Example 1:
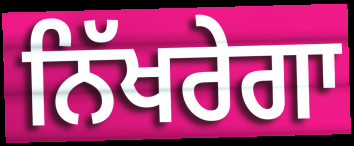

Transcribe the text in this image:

ਨਿੱਖਰੇਗਾ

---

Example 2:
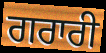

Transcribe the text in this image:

ਗਰਾਰੀ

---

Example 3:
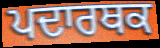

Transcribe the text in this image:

ਪਦਾਰਥਕ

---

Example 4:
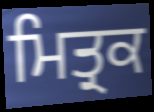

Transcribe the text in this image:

ਮਿਤ੍ਰਕ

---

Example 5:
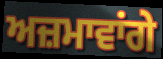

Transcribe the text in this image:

ਅਜ਼ਮਾਵਾਂਗੇ